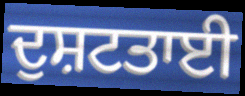
ਦੁਸ਼ਟਤਾਈ